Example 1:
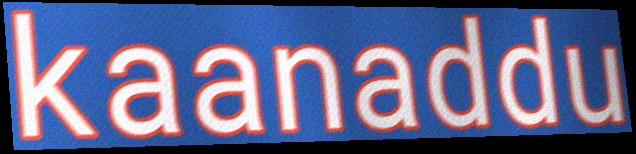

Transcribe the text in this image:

kaanaddu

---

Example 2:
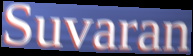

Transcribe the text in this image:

Suvaran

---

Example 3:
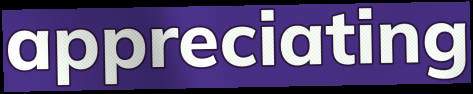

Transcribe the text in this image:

appreciating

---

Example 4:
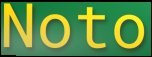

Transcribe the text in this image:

Noto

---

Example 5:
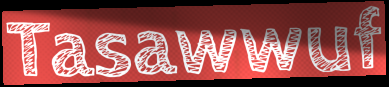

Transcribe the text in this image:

Tasawwuf